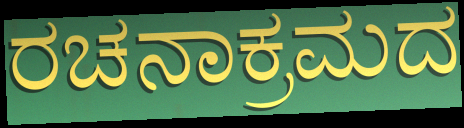
ರಚನಾಕ್ರಮದ